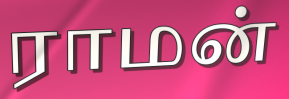
ராமன்